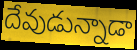
దేవుడున్నాడా